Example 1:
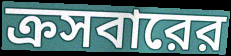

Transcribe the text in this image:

ক্রসবারের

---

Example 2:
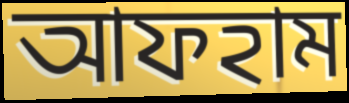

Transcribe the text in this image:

আফহাম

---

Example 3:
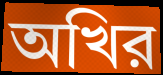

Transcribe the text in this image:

অখির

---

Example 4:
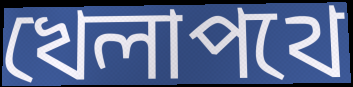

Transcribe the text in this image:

খেলাপথে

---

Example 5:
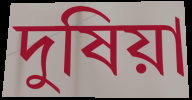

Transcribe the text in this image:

দুষিয়া